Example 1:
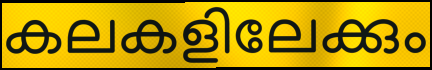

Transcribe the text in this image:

കലകളിലേക്കും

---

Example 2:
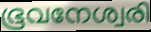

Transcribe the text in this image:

ഭൂവനേശ്വരി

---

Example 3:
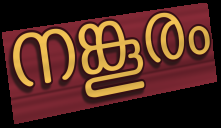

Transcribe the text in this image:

നങ്കൂരം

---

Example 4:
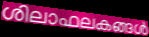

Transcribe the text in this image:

ശിലാഫലകങ്ങൾ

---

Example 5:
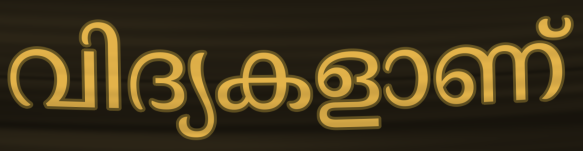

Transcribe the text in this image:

വിദ്യകളാണ്